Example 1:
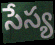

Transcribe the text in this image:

సేస్య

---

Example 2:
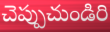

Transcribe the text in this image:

చెప్పుచుండిరి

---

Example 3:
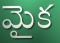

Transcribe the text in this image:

మైక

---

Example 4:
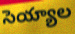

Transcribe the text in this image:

సెయ్యాల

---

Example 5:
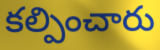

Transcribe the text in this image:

కల్పించారు